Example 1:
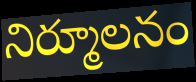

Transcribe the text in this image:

నిర్మూలనం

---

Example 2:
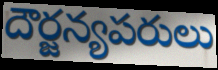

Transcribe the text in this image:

దౌర్జన్యపరులు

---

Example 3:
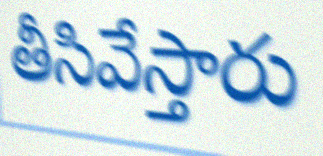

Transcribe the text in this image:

తీసివేస్తారు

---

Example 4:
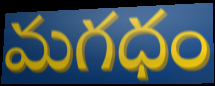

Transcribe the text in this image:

మగధం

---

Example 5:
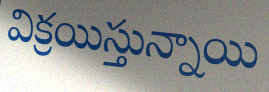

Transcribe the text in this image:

విక్రయిస్తున్నాయి